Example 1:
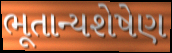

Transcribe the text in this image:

ભૂતાન્યશેષેણ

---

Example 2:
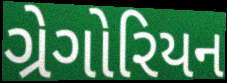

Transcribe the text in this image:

ગ્રેગોરિયન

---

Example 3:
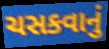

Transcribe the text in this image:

ચસકવાનું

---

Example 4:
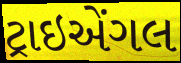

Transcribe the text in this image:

ટ્રાઇએંગલ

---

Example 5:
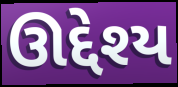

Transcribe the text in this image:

ઊદ્દેશ્ય